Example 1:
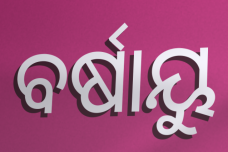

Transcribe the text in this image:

ବର୍ଷାୟୁ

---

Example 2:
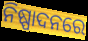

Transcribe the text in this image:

ନିଷ୍ପାଦନରେ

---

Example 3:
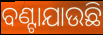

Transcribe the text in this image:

ବଣ୍ଟାଯାଉଛି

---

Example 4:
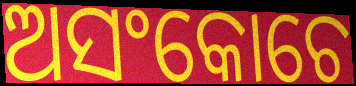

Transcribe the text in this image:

ଅସଂକୋଚେ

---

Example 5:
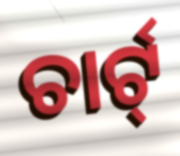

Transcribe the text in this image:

ଚାର୍ଟ୍